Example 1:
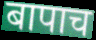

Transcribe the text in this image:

बापाच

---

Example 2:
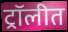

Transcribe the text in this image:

ट्रॉलीत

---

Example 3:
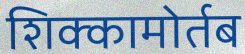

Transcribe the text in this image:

शिक्‍कामोर्तब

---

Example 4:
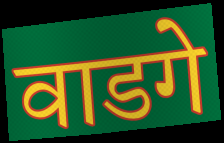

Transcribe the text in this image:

वाडगे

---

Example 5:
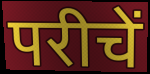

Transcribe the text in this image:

परीचें